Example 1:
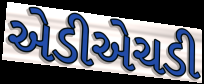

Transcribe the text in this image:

એડીએચડી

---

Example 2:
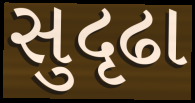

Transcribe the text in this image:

સુદૃઢા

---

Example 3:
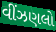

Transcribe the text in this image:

વીંઝણલો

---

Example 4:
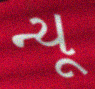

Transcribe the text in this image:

ન્યૂ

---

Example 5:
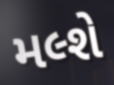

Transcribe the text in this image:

મલ્શે